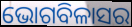
ଭୋଗବିଳାସର